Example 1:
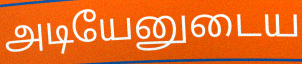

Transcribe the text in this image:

அடியேனுடைய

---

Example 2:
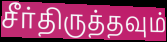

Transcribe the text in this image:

சீர்திருத்தவும்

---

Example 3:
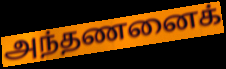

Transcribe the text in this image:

அந்தணனைக்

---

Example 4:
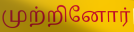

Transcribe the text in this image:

முற்றினோர்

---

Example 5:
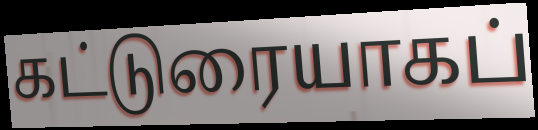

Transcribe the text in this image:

கட்டுரையாகப்